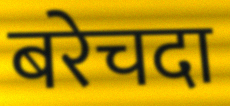
बरेचदा